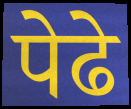
पेढे